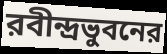
রবীন্দ্রভুবনের